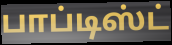
பாப்டிஸ்ட்